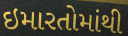
ઇમારતોમાંથી